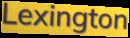
Lexington